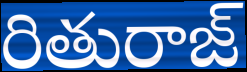
రితురాజ్